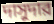
দাসুদার